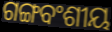
ଗଙ୍ଗବଂଶୀୟ